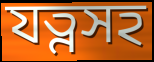
যত্নসহ